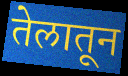
तेलातून